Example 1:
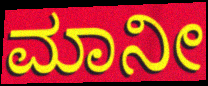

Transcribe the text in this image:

ಮಾನೀ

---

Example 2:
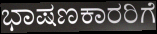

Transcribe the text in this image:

ಭಾಷಣಕಾರರಿಗೆ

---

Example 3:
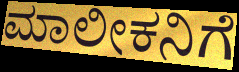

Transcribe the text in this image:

ಮಾಲೀಕನಿಗೆ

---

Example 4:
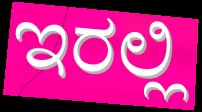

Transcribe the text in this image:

ಇರಲ್ಲಿ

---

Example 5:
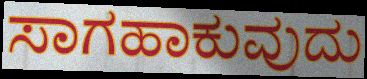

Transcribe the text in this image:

ಸಾಗಹಾಕುವುದು